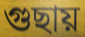
গুছায়